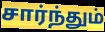
சார்ந்தும்